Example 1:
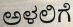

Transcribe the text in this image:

ಅಳಲಿಗೆ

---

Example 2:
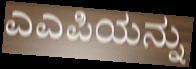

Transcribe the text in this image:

ಎಎಪಿಯನ್ನು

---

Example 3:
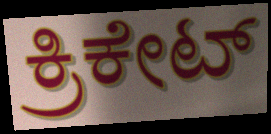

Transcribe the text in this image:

ಕ್ರಿಕೇಟ್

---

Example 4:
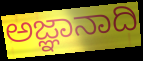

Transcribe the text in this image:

ಅಜ್ಞಾನಾದಿ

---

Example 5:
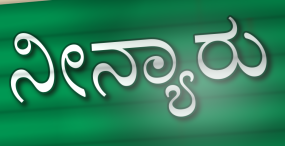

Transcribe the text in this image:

ನೀನ್ಯಾರು